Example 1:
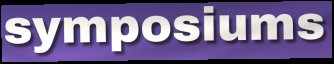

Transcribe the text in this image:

symposiums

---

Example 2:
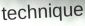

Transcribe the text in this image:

technique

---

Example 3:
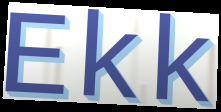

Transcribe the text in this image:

Ekk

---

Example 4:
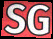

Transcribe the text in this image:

SG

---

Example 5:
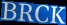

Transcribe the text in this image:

BRCK